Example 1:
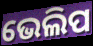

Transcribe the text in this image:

ଭେଲିପ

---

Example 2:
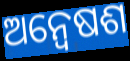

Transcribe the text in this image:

ଅନ୍ୱେଷଶ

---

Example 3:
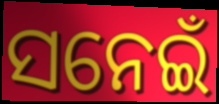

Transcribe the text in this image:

ସନେଇଁ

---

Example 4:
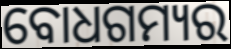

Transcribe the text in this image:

ବୋଧଗମ୍ୟର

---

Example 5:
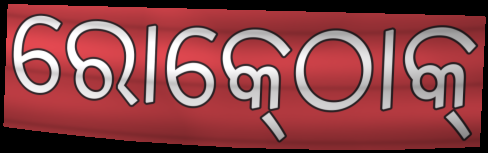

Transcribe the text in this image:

ରୋକ୍‍ଠୋକ୍